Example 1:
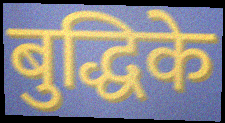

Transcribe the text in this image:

बुद्धिके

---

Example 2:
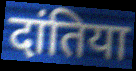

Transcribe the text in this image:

दांतिया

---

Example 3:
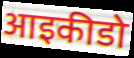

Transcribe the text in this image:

आइकीडो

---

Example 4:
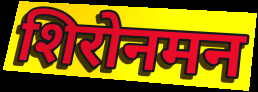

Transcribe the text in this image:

शिरोनमन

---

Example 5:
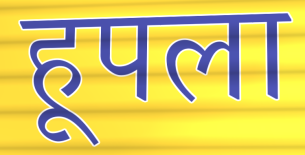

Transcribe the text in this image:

हूपला